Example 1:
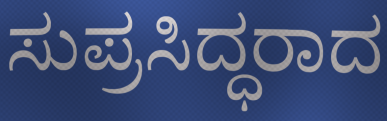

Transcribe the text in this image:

ಸುಪ್ರಸಿದ್ಧರಾದ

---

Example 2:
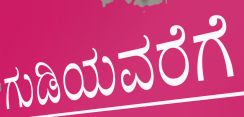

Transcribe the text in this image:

ಗುಡಿಯವರೆಗೆ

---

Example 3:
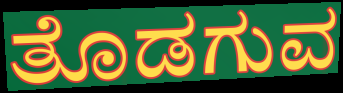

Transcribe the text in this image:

ತೊಡಗುವ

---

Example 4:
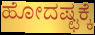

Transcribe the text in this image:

ಹೋದಷ್ಟಕ್ಕೆ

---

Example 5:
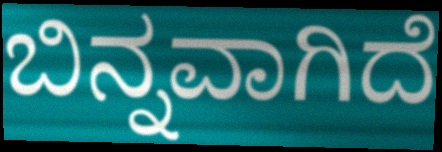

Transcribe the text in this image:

ಬಿನ್ನವಾಗಿದೆ